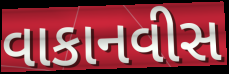
વાકાનવીસ